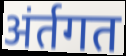
अंर्तगत